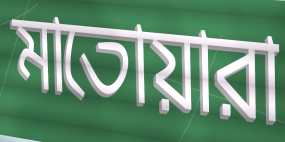
মাতোয়ারা